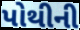
પોથીની